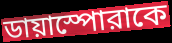
ডায়াস্পোরাকে